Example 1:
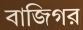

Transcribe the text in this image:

বাজিগর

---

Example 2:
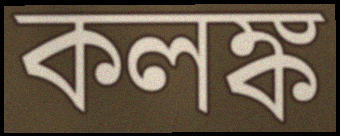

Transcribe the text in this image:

কলঙ্ক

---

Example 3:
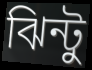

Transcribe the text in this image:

ঝিন্টু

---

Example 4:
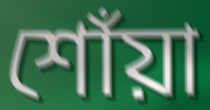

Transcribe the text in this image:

শোঁয়া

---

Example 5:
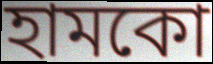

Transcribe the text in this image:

হামকো